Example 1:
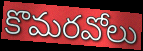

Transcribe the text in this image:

కొమరవోలు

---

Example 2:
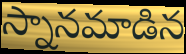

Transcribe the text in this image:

స్నానమాడిన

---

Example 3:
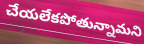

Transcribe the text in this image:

చేయలేకపోతున్నామని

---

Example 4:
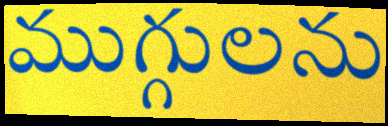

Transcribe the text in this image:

ముగ్గులను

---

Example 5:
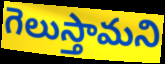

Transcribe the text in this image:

గెలుస్తామని